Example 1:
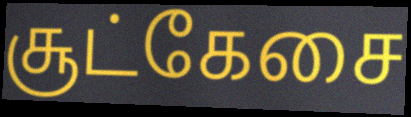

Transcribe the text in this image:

சூட்கேசை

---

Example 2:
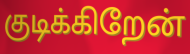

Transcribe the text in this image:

குடிக்கிறேன்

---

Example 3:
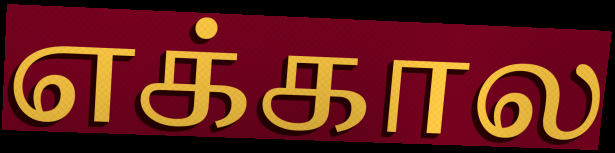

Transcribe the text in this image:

எக்கால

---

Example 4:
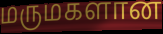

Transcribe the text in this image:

மருமகளான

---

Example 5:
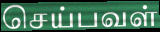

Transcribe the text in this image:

செய்பவள்